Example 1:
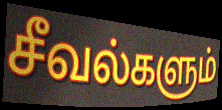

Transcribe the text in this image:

சீவல்களும்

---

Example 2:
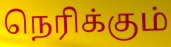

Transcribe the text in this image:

நெரிக்கும்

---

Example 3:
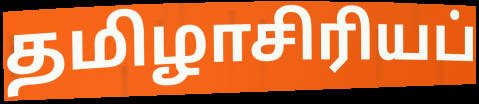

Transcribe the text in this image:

தமிழாசிரியப்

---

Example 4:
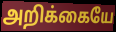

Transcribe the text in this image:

அறிக்கையே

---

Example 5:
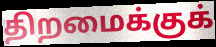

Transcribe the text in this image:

திறமைக்குக்